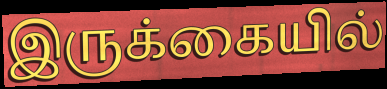
இருக்கையில்